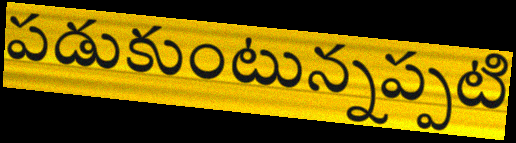
పడుకుంటున్నప్పటి